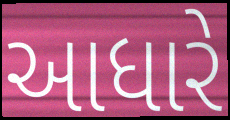
આધારે